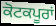
ਕੋਟਕਪੂਰਾਂ